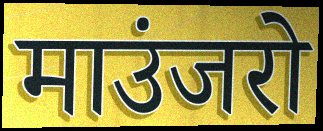
माउंजरो